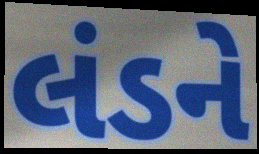
લંડને